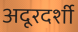
अदूरदर्शी